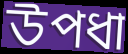
উপধা